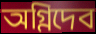
অগ্নিদেব